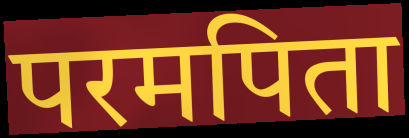
परमपिता